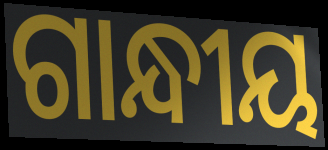
ଗାନ୍ଧୀୟ